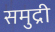
समुद्री